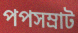
পপসম্রাট